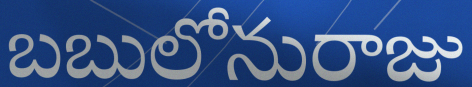
బబులోనురాజు